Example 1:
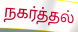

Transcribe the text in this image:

நகர்த்தல்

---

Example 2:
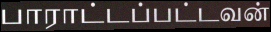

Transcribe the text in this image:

பாராட்டப்பட்டவன்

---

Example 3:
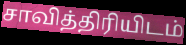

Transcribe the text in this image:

சாவித்திரியிடம்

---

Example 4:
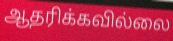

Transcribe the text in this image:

ஆதரிக்கவில்லை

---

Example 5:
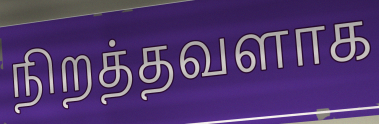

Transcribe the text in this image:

நிறத்தவளாக